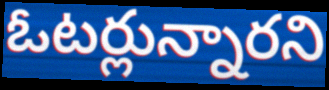
ఓటర్లున్నారని